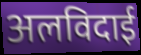
अलविदाई